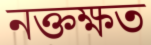
নক্তক্ষত